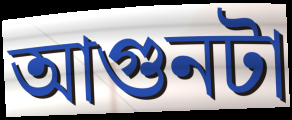
আগুনটা